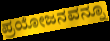
ಪ್ರಯೋಜನವನ್ನೂ